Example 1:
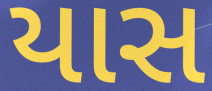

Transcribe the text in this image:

યાસ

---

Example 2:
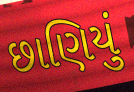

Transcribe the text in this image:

છાણિયું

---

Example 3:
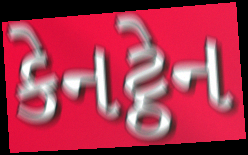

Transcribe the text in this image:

કેનટ્ઠેન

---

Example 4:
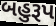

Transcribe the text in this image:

બહુરૂપ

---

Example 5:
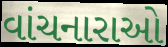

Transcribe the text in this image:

વાંચનારાઓ